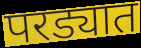
परड्यात